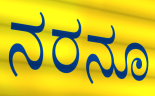
ನರನೂ